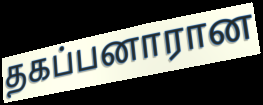
தகப்பனாரான